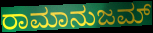
ರಾಮಾನುಜಮ್